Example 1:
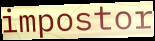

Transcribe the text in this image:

impostor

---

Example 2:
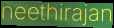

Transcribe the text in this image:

neethirajan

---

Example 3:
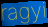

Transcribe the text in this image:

ragyi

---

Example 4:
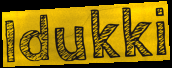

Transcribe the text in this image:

Idukki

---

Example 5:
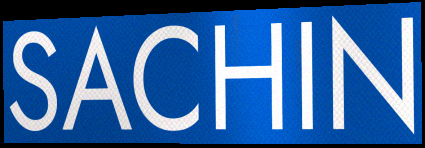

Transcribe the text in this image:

SACHIN